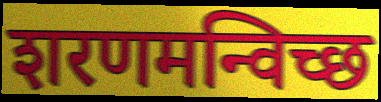
शरणमन्विच्छ